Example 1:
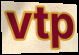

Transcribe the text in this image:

vtp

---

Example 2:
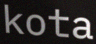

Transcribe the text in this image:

kota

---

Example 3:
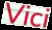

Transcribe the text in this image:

Vici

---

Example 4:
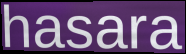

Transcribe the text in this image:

hasara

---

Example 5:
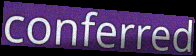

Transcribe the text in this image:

conferred